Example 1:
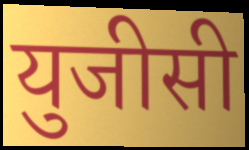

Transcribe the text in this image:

युजीसी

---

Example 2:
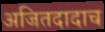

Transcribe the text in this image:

अजितदादाच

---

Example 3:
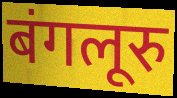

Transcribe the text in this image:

बंगलूरु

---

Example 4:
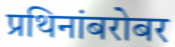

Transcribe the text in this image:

प्रथिनांबरोबर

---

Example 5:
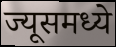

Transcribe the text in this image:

ज्यूसमध्ये